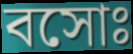
বসোঃ